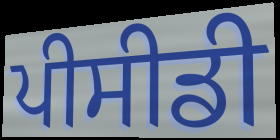
ਪੀਸੀਡੀ